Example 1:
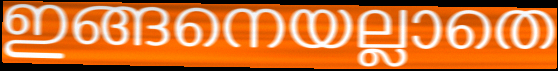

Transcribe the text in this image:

ഇങ്ങനെയല്ലാതെ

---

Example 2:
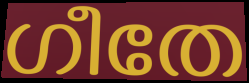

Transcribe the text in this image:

ഗീതേ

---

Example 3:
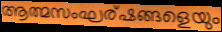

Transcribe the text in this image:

ആത്മസംഘര്ഷങ്ങളെയും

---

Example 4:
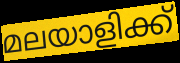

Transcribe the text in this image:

മലയാളിക്ക്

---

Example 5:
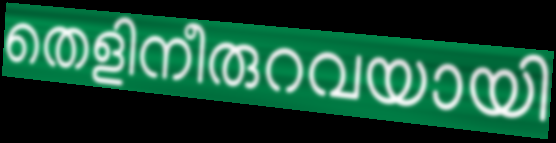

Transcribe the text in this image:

തെളിനീരുറവയായി